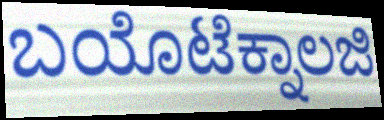
ಬಯೊಟೆಕ್ನಾಲಜಿ